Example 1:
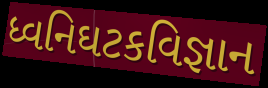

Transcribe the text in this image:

ધ્વનિઘટકવિજ્ઞાન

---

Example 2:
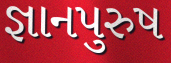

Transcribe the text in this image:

જ્ઞાનપુરુષ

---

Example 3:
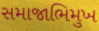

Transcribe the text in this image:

સમાજાભિમુખ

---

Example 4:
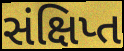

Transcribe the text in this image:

સંક્ષિપ્ત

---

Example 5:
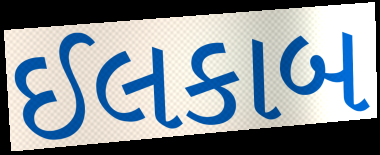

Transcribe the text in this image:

ઈલકાબ